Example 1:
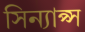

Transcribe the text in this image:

সিন্যাপ্স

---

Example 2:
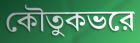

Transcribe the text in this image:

কৌতুকভরে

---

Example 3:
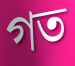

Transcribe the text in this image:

গত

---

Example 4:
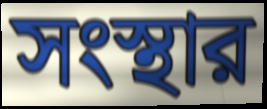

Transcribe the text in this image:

সংস্থার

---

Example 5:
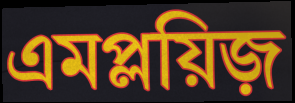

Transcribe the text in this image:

এমপ্লয়িজ়